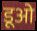
डूओ